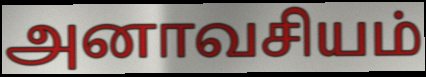
அனாவசியம்